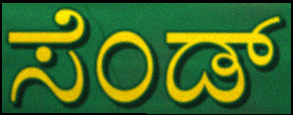
ಸೆಂಡ್